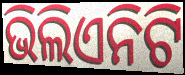
ଭିଲିଏନିଟି